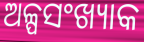
ଅଳ୍ପସଂଖ୍ୟାକ